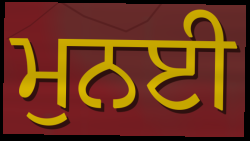
ਮੁਨਈ